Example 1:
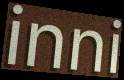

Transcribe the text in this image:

inni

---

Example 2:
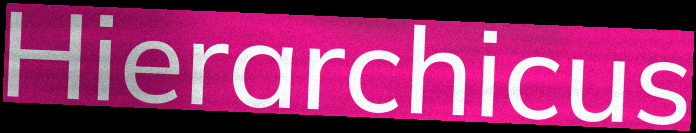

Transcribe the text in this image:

Hierarchicus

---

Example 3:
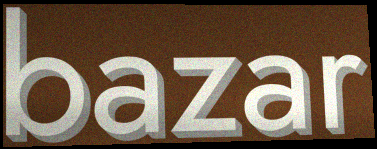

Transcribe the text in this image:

bazar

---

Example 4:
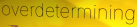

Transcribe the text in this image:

overdetermining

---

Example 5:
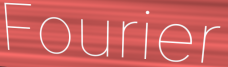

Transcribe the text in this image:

Fourier